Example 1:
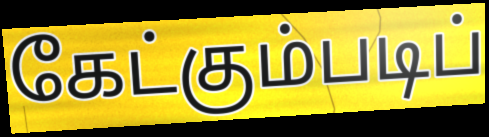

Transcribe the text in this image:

கேட்கும்படிப்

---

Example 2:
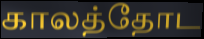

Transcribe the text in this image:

காலத்தோட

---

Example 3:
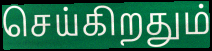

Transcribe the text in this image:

செய்கிறதும்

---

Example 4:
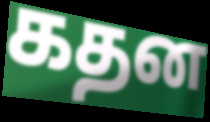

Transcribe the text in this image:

கதன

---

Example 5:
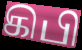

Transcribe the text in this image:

கிபி